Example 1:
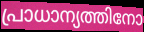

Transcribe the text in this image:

പ്രാധാന്യത്തിനോ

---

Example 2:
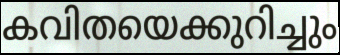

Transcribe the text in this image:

കവിതയെക്കുറിച്ചും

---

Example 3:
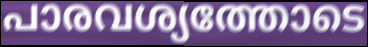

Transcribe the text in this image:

പാരവശ്യത്തോടെ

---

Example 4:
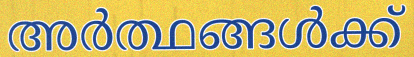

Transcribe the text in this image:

അർത്ഥങ്ങൾക്ക്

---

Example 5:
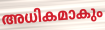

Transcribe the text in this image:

അധികമാകും